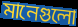
মানেগুলো